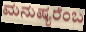
ಮನುಷ್ಯರೆಂಬ